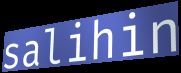
salihin